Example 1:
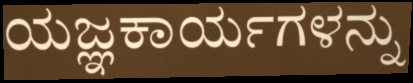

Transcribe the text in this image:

ಯಜ್ಞಕಾರ್ಯಗಳನ್ನು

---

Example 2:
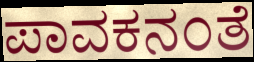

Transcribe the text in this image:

ಪಾವಕನಂತೆ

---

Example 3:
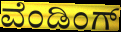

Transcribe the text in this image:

ವೆಂಡಿಂಗ್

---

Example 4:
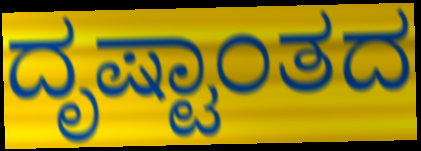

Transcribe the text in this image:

ದೃಷ್ಟಾಂತದ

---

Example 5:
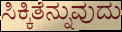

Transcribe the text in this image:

ಸಿಕ್ಕಿತೆನ್ನುವುದು